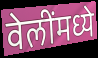
वेलींमध्ये